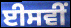
ਈਸਵੀਂ